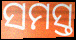
ସମସ୍ତ